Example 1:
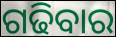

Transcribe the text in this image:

ଗଢିବାର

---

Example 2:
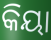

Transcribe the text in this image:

କିୟା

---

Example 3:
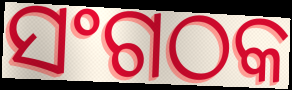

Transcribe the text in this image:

ସଂଗଠକ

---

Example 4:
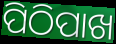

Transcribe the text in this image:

ପିଠିପାଖ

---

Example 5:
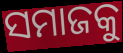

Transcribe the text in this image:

ସମାଜକୁ